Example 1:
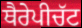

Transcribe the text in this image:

ਥੈਰੇਪੀਚੱਟ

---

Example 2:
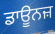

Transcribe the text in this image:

ਡਾਊਨਜ਼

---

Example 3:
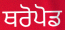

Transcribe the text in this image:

ਥਰੋਪੋਡ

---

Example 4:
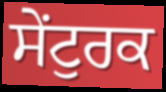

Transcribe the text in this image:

ਸੇਂਟੁਰਕ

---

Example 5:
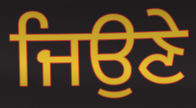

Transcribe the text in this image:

ਜਿਉਣੇ